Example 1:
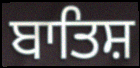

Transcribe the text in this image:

ਬਾਤਿਸ਼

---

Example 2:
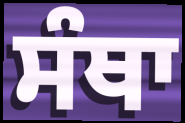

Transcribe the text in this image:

ਸੰਥਾ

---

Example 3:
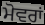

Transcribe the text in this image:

ਮੋਵਰਾਂ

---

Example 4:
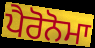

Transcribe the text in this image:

ਪੈਰੋਨੋਮਾ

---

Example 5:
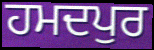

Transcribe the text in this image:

ਹਮਦਪੁਰ